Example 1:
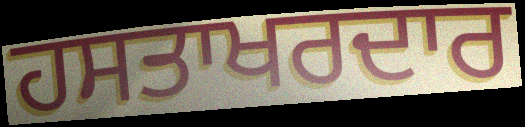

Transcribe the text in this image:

ਹਸਤਾਖਰਦਾਰ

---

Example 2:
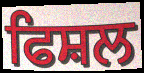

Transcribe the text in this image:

ਫਿਸ਼ਲ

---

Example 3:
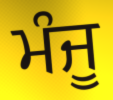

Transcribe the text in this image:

ਮੰਜੂ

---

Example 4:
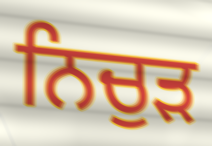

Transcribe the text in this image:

ਨਿਚੁੜ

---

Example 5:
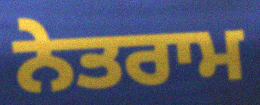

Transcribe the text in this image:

ਨੇਤਰਾਮ